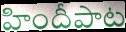
హిందీపాట